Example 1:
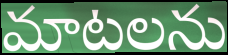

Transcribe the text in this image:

మాటలను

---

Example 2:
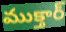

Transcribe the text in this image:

ముక్తార్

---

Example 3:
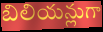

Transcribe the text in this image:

బిలియన్లుగా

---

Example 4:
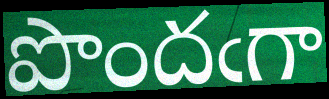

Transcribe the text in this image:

పొందఁగా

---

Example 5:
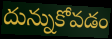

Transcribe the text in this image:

దున్నుకోవడం